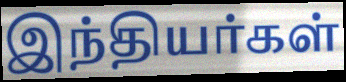
இந்தியர்கள்